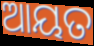
ଆୟତ